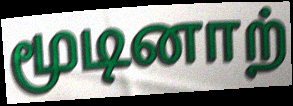
மூடினாற்